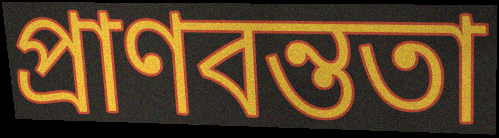
প্রাণবন্ততা